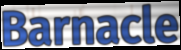
Barnacle